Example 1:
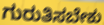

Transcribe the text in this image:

ಗುರುತಿಸಬೇಕು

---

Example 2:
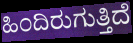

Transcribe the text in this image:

ಹಿಂದಿರುಗುತ್ತಿದೆ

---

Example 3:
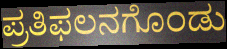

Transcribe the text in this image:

ಪ್ರತಿಫಲನಗೊಂಡು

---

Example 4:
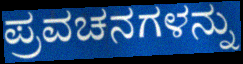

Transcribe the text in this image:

ಪ್ರವಚನಗಳನ್ನು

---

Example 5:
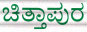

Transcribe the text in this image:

ಚಿತ್ತಾಪುರ